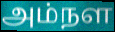
அம்நள